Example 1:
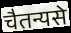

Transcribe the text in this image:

चैतन्यसे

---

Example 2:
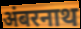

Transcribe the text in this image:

अंबरनाथ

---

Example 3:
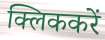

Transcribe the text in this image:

क्लिककरें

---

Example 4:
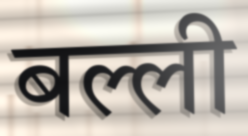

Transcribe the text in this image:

बल्ली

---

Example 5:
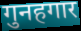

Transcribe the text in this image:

गुनहगार